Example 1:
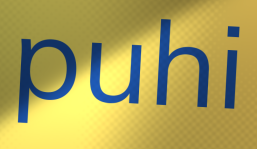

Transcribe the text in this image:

puhi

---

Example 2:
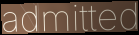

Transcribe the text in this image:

admitted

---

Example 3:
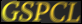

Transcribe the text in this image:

GSPCL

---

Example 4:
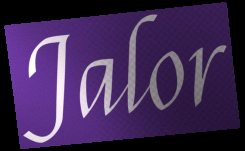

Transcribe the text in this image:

Jalor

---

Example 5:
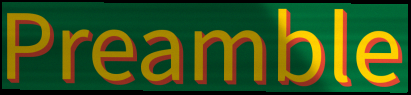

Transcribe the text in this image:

Preamble